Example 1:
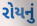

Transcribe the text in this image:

રોયનું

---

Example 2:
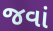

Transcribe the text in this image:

જવાં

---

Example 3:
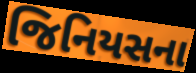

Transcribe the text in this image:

જિનિયસના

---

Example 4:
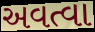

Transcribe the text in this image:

અવત્વા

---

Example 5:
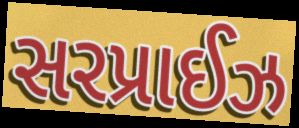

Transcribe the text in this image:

સરપ્રાઈઝ